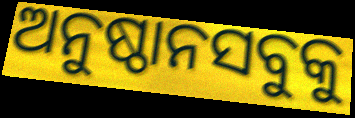
ଅନୁଷ୍ଠାନସବୁକୁ